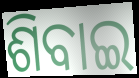
ଶିବାଇ